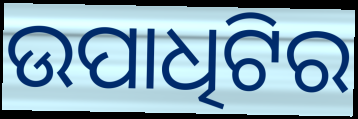
ଉପାଧିଟିର